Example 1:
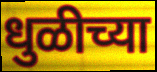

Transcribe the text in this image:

धुळीच्या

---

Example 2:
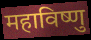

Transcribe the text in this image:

महाविष्णु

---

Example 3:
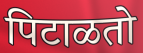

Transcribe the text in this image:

पिटाळतो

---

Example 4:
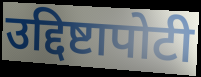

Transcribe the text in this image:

उद्दिष्टापोटी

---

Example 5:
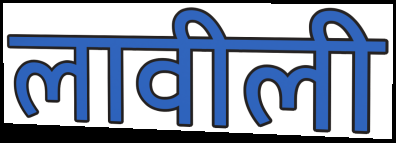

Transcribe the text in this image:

लावीली